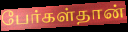
பேர்கள்தான்